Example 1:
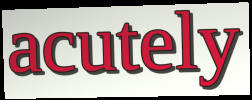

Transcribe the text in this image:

acutely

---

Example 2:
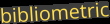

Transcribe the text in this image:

bibliometric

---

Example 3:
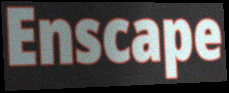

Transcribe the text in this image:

Enscape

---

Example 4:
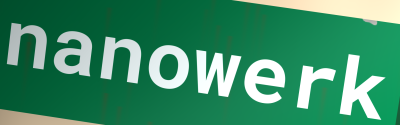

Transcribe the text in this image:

nanowerk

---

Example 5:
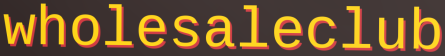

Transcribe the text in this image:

wholesaleclub